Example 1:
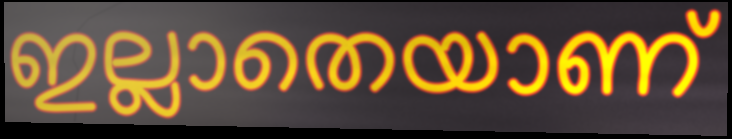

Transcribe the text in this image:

ഇല്ലാതെയാണ്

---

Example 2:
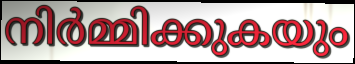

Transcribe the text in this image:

നിർമ്മിക്കുകയും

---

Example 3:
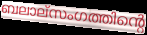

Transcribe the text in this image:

ബലാല്സംഗത്തിന്റെ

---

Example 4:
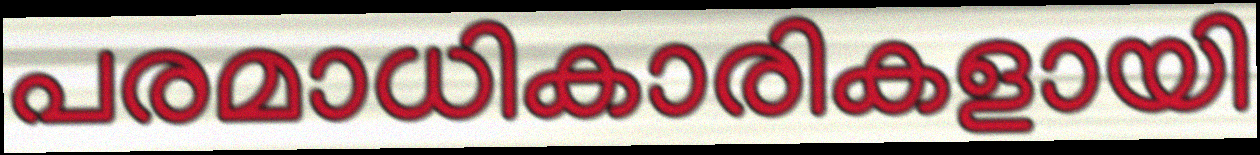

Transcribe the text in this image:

പരമാധികാരികളായി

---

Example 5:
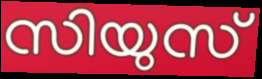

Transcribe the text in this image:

സിയുസ്